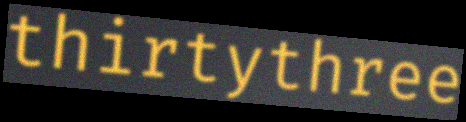
thirtythree